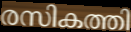
രസികത്തി